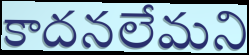
కాదనలేమని